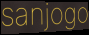
sanjogo